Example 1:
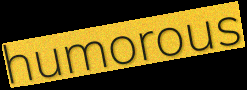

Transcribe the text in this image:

humorous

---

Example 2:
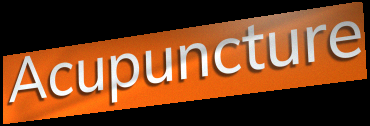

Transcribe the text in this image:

Acupuncture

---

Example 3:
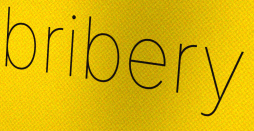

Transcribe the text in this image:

bribery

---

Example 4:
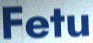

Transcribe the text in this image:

Fetu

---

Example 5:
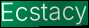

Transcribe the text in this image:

Ecstacy